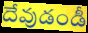
దేవుడండీ